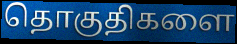
தொகுதிகளை